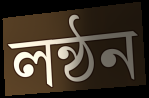
লন্ঠন